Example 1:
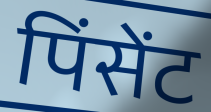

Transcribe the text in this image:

पिंसेंट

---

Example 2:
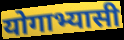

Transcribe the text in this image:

योगाभ्यासी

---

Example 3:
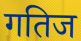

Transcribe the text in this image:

गतिज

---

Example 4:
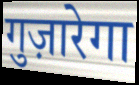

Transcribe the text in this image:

गुज़ारेगा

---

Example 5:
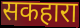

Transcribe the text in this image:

सकहारा